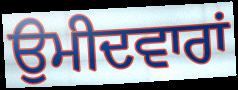
ਉੁਮੀਦਵਾਰਾਂ